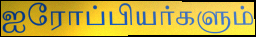
ஐரோப்பியர்களும்